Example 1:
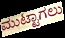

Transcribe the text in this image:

ಮುಟ್ಟಾಗಲು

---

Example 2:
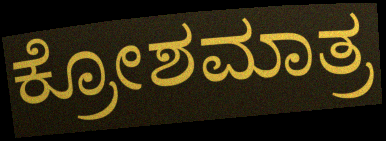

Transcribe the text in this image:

ಕ್ರೋಶಮಾತ್ರ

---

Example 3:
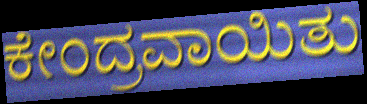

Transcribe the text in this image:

ಕೇಂದ್ರವಾಯಿತು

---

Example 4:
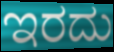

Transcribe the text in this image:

ಇರದು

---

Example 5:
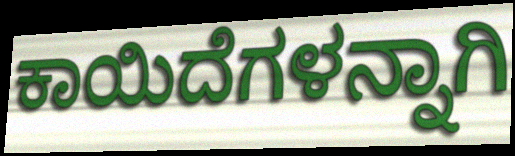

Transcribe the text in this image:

ಕಾಯಿದೆಗಳನ್ನಾಗಿ